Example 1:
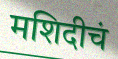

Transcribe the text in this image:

मशिदीचं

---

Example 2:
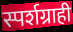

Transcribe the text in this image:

स्पर्शग्राही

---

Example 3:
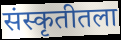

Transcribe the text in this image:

संस्कृतीतला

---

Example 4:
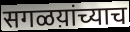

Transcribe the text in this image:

सगळय़ांच्याच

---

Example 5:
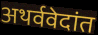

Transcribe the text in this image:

अथर्ववेदांत